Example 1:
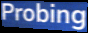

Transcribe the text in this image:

Probing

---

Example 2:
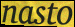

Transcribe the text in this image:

nasto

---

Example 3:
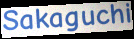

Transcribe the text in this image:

Sakaguchi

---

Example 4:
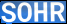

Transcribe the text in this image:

SOHR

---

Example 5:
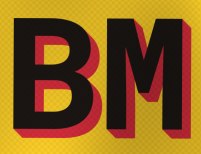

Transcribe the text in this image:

BM